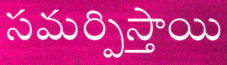
సమర్పిస్తాయి